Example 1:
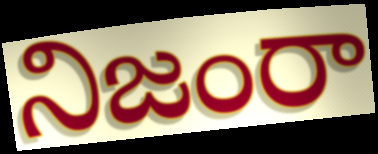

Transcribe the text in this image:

నిజంరా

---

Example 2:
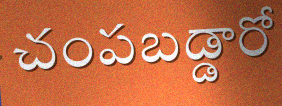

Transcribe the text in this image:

చంపబడ్డారో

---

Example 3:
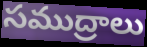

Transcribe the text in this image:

సముద్రాలు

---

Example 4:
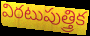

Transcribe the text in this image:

విరటుపుత్త్రిక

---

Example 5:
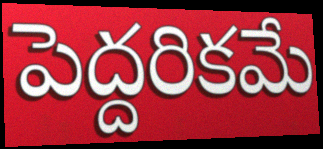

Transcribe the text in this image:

పెద్దరికమే